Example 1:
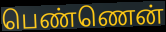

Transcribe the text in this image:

பெண்ணென்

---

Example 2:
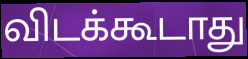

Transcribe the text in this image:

விடக்கூடாது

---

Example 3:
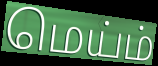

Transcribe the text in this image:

மெய்ம்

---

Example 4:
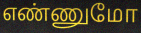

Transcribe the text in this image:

எண்ணுமோ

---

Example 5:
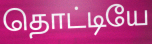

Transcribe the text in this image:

தொட்டியே